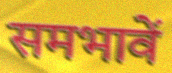
समभावें